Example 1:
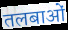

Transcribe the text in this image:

तलबाओं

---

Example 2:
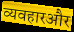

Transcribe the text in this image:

व्यवहारऔर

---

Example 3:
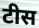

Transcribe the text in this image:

टीस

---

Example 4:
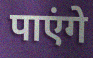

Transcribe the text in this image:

पाएंगे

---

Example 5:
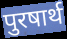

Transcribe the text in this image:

पुरषार्थ